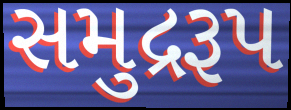
સમુદ્રરૂપ